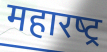
महारष्ट्र